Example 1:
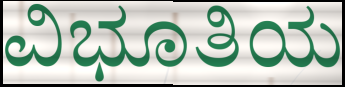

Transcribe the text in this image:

ವಿಭೂತಿಯ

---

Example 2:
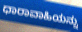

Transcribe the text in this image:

ಧಾರಾವಾಹಿಯನ್ನು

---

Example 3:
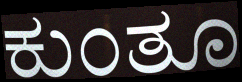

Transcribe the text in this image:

ಕುಂತೂ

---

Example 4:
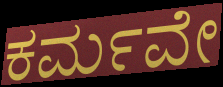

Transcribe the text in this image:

ಕರ್ಮವೇ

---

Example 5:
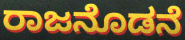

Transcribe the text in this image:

ರಾಜನೊಡನೆ